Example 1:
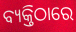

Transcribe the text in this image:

ବ୍ୟକ୍ତିଠାରେ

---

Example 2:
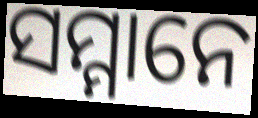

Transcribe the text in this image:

ସମ୍ମାନେ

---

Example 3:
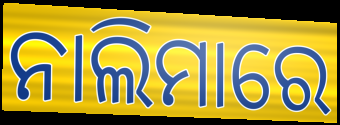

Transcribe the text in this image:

ନାଲିମାରେ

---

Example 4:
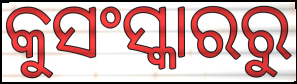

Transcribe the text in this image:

କୁସଂସ୍କାରରୁ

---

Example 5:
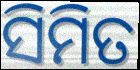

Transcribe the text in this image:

ସିମିତ